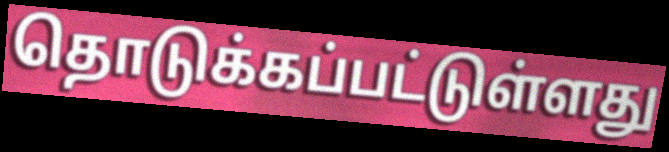
தொடுக்கப்பட்டுள்ளது